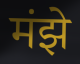
मंझे